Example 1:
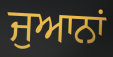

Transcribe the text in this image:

ਜੁਆਨਾਂ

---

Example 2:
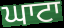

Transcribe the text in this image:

ਘਾਟਾ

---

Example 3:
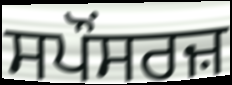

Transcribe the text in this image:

ਸਪੌਂਸਰਜ਼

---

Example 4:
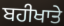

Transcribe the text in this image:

ਬਹੀਖਾਤੇ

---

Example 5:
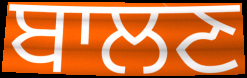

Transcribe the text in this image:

ਬਾਲਣ